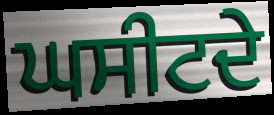
ਘਸੀਟਦੇ